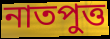
নাতপুত্ত